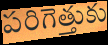
పరిగెత్తుకు